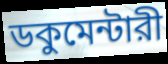
ডকুমেন্টারী